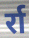
र्रा